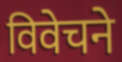
विवेचने